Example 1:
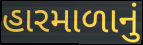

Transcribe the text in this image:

હારમાળાનું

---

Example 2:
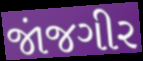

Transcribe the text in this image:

જાંજગીર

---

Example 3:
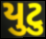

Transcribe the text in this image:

યુટુ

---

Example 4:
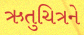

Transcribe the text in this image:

ઋતુચિત્રને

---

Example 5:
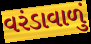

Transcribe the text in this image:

વરંડાવાળું